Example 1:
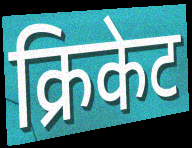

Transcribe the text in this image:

क्रिकेट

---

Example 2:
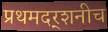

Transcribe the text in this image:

प्रथमदर्शनीच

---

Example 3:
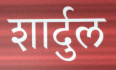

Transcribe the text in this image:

शार्दुल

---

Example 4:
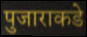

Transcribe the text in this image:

पुजाराकडे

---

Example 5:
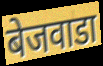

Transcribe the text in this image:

बेजवाडा